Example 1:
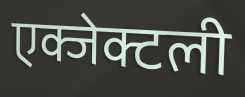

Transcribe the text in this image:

एक्जेक्टली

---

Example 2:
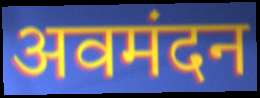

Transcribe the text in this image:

अवमंदन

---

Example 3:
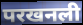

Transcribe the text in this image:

परखनली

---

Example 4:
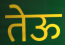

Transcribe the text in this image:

तेऊ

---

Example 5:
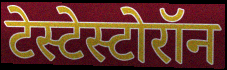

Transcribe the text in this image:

टेस्टेस्टोरॉन